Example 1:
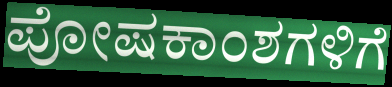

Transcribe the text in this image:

ಪೋಷಕಾಂಶಗಳಿಗೆ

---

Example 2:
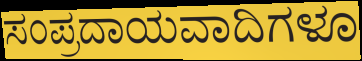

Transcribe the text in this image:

ಸಂಪ್ರದಾಯವಾದಿಗಳೂ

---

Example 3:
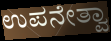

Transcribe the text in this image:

ಉಪನೇತ್ವಾ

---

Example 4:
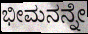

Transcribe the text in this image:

ಭೀಮನನ್ನೇ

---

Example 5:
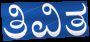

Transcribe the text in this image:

ತಿವಿತ